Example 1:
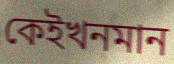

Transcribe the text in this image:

কেইখনমান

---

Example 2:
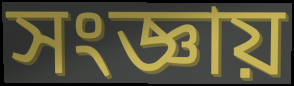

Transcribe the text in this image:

সংজ্ঞায়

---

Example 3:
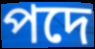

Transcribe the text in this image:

পদে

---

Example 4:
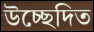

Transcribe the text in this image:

উচ্ছেদিত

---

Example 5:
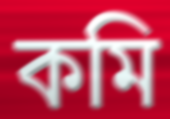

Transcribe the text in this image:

কমি